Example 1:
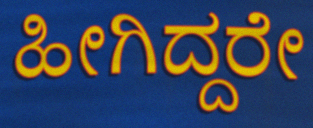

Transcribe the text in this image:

ಹೀಗಿದ್ದರೇ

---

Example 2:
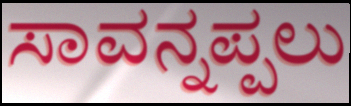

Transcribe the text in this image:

ಸಾವನ್ನಪ್ಪಲು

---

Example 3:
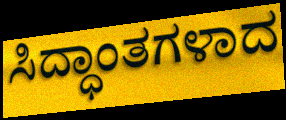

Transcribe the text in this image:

ಸಿದ್ಧಾಂತಗಳಾದ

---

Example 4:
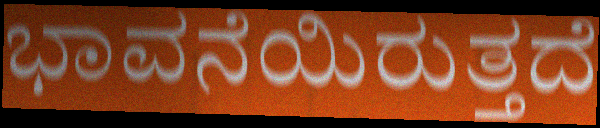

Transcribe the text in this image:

ಭಾವನೆಯಿರುತ್ತದೆ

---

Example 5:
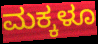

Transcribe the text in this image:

ಮಕ್ಕಳೂ